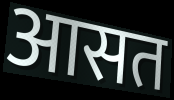
आसत